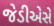
જેડીએસે